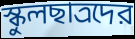
স্কুলছাত্রদের